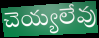
చెయ్యలేవు